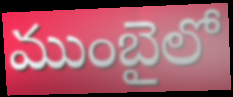
ముంబైలో